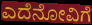
ಎದೆನೋವಿಗೆ